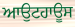
ਆਉਟਹਾਊਸ